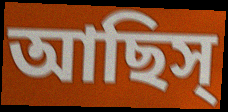
আছিস্